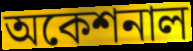
অকেশনাল